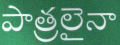
పాత్రలైనా